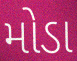
મોડા